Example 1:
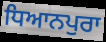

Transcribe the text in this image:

ਧਿਆਨਪੁਰਾ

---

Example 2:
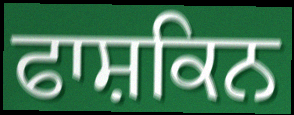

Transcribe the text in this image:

ਫਾਸ਼ਕਿਨ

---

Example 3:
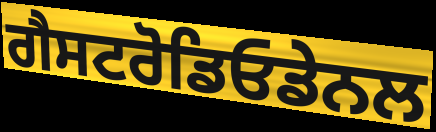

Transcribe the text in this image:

ਗੈਸਟਰੋਡਿਓਡੇਨਲ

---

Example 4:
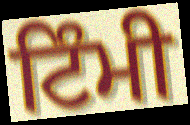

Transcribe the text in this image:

ਟਿੰਮੀ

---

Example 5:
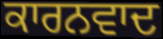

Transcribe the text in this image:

ਕਾਰਨਵਾਦ